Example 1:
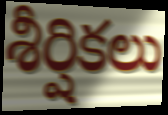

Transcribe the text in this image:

శీర్షికలు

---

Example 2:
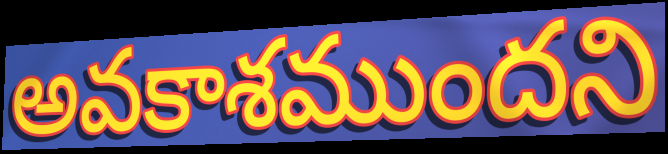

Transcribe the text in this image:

అవకాశముందని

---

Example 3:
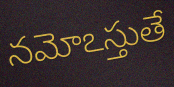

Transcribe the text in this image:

నమోఽస్తుతే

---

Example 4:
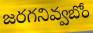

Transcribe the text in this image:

జరగనివ్వబోం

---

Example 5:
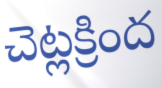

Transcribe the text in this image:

చెట్లక్రింద